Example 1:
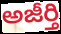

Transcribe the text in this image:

అజీర్తి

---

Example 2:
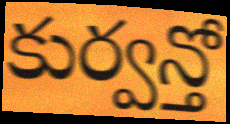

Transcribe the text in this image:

కుర్వన్తో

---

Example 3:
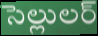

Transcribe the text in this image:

సెల్లులర్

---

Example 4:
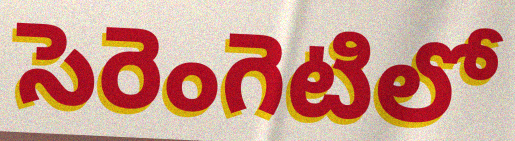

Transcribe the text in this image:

సెరెంగెటిలో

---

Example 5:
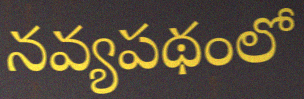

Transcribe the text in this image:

నవ్యపథంలో